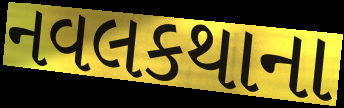
નવલકથાના